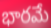
భారమే